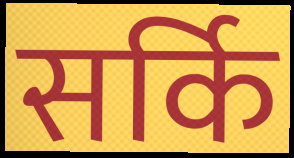
सर्कि